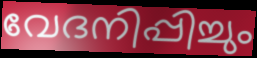
വേദനിപ്പിച്ചും